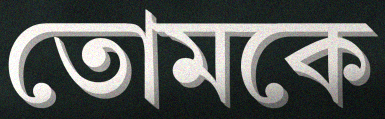
তোমকে